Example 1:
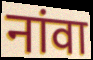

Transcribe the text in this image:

नांवा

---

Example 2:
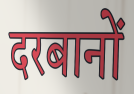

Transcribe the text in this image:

दरबानों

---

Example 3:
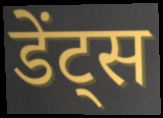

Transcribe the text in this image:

डेंट्स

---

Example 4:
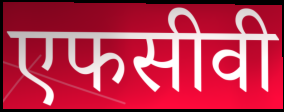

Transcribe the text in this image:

एफसीवी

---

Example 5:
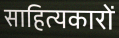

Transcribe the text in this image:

साहित्यकारों